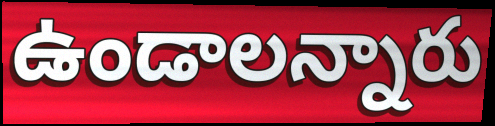
ఉండాలన్నారు